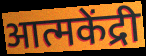
आत्मकेंद्री